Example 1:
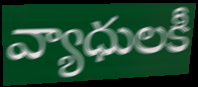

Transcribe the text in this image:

వ్యాధులకీ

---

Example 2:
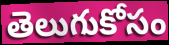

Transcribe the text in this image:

తెలుగుకోసం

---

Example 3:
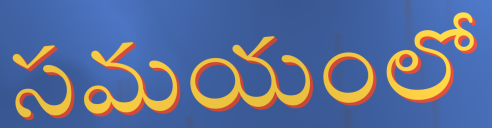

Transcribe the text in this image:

సమయంలో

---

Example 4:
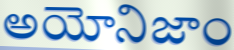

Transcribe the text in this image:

అయోనిజాం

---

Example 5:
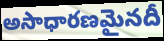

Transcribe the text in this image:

అసాధారణమైనదీ